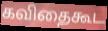
கவிதைகூட